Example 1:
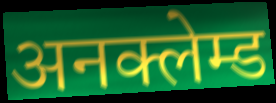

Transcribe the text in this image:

अनक्लेम्ड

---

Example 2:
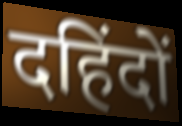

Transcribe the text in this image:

दहिंदों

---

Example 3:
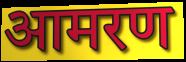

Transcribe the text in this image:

आमरण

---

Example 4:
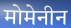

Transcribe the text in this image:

मोमेनीन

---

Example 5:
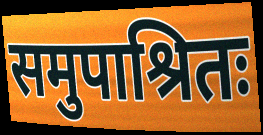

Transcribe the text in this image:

समुपाश्रितः